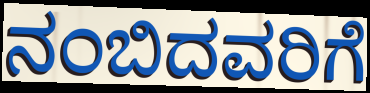
ನಂಬಿದವರಿಗೆ